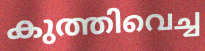
കുത്തിവെച്ച